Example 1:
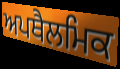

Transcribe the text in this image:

ਅਪਥੈਲਮਿਕ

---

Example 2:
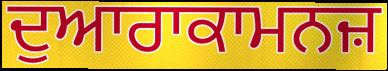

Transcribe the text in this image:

ਦੁਆਰਾਕਾਮਨਜ਼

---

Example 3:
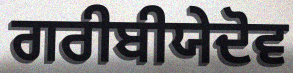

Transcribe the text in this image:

ਗਰੀਬੀਯੇਦੋਵ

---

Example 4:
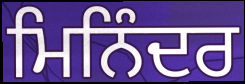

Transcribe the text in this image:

ਮਿਨਿੰਦਰ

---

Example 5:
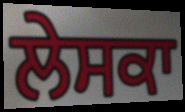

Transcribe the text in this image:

ਲੇਸਕਾ